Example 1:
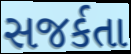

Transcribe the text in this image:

સજર્કતા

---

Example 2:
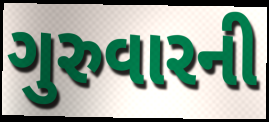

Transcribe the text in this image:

ગુરુવારની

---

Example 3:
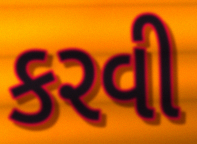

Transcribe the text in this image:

કરવી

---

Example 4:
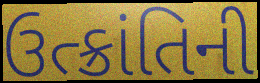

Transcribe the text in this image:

ઉત્ક્રાંતિની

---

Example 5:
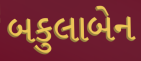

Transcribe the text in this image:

બકુલાબેન